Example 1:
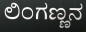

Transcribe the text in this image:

ಲಿಂಗಣ್ಣನ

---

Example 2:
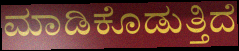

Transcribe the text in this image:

ಮಾಡಿಕೊಡುತ್ತಿದೆ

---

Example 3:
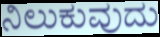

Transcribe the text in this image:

ನಿಲುಕುವುದು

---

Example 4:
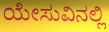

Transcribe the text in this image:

ಯೇಸುವಿನಲ್ಲಿ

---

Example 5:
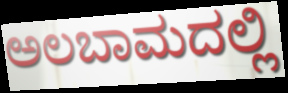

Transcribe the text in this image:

ಅಲಬಾಮದಲ್ಲಿ